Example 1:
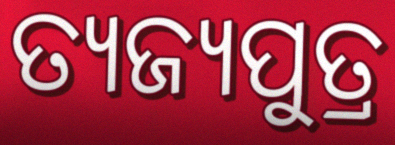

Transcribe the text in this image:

ତ୍ୟଜ୍ୟପୁତ୍ର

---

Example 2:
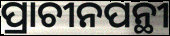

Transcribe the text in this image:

ପ୍ରାଚୀନପନ୍ଥୀ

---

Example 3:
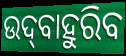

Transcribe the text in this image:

ଉଦ୍‌ବାହୁରିବ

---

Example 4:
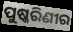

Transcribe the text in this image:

ପୁଷ୍କରିଣୀର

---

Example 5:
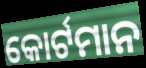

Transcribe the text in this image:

କୋର୍ଟମାନ